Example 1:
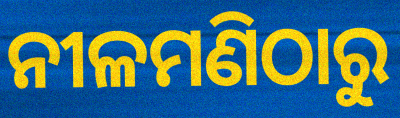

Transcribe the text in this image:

ନୀଳମଣିଠାରୁ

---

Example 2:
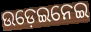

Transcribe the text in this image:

ଉଡ଼େଇନେଇ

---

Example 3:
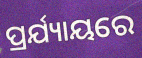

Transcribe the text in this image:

ପ୍ରର୍ଯ୍ୟାୟରେ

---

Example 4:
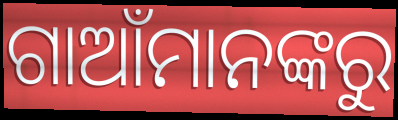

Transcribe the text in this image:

ଗାଆଁମାନଙ୍କରୁ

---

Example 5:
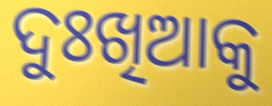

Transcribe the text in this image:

ଦୁଃଖିଆକୁ